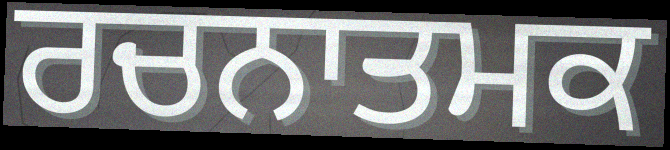
ਰਚਨਾਤਮਕ